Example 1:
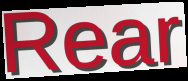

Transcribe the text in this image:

Rear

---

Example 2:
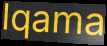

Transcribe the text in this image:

Iqama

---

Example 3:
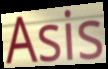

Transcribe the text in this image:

Asis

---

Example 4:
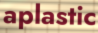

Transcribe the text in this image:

aplastic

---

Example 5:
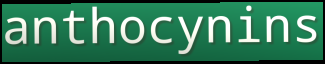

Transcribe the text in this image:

anthocynins